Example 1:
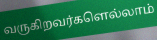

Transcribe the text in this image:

வருகிறவர்களெல்லாம்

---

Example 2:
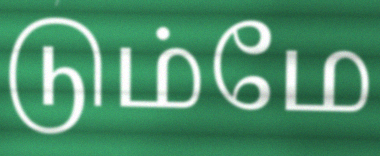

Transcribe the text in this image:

டும்மே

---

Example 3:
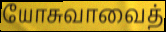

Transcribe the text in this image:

யோசுவாவைத்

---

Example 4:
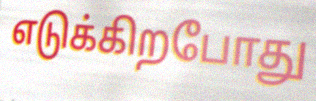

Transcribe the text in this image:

எடுக்கிறபோது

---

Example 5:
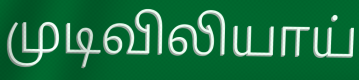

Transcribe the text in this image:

முடிவிலியாய்